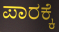
ಪಾರಕ್ಕೆ